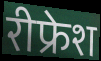
रीफ्रेश